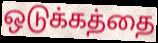
ஒடுக்கத்தை